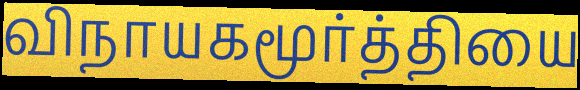
விநாயகமூர்த்தியை